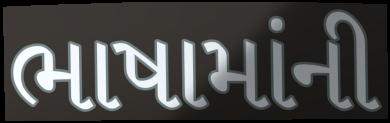
ભાષામાંની